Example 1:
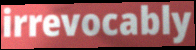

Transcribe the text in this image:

irrevocably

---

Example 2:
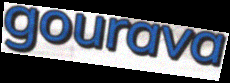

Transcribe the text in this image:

gourava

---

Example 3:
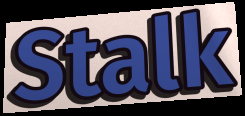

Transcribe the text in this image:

Stalk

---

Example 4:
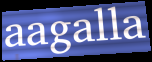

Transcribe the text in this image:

aagalla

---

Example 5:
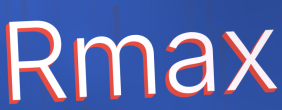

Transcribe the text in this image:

Rmax